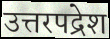
उत्तरपद्रेश